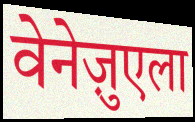
वेनेज़ुएला